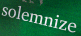
solemnize